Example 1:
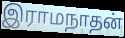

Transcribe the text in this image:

இராமநாதன்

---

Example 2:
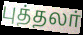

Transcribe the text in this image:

புத்தலர்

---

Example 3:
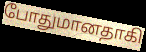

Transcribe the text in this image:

போதுமானதாகி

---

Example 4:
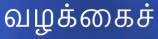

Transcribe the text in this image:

வழக்கைச்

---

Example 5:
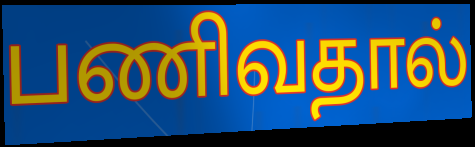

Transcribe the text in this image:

பணிவதால்